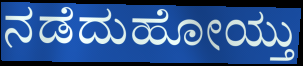
ನಡೆದುಹೋಯ್ತು